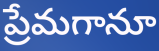
ప్రేమగానూ